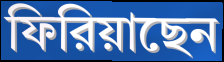
ফিরিয়াছেন